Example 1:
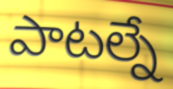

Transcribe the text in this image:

పాటల్నే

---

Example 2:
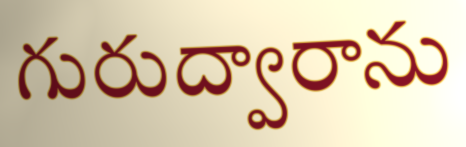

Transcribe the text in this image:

గురుద్వారాను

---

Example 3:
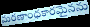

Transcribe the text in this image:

మరణాంధకారమైనను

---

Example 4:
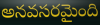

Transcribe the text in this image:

అనవసరమైంది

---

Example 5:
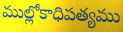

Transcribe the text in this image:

ముల్లోకాధిపత్యము